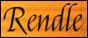
Rendle